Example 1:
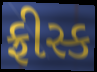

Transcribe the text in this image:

ફ્રીસ્ક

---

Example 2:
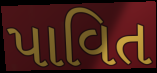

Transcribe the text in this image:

પાવિત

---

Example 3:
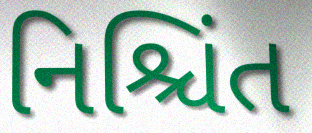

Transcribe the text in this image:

નિશ્ચિંત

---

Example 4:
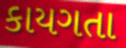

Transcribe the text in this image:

કાયગતા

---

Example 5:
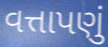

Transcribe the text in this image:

વત્તાપણું